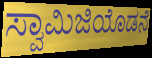
ಸ್ವಾಮಿಜಿಯೊಡನೆ